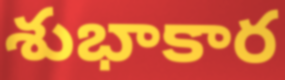
శుభాకార